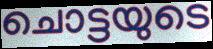
ചൊട്ടയുടെ